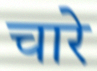
चारे